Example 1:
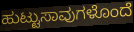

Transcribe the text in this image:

ಹುಟ್ಟುಸಾವುಗಳೊಂದೆ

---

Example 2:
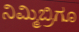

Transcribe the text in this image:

ನಿಮ್ಮಿಬ್ರಿಗೂ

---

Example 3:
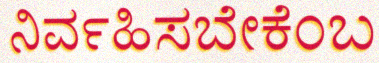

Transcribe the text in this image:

ನಿರ್ವಹಿಸಬೇಕೆಂಬ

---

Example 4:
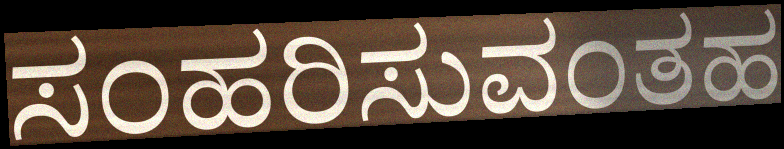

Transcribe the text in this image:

ಸಂಹರಿಸುವಂತಹ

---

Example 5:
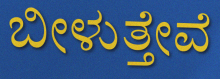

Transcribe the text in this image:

ಬೀಳುತ್ತೇವೆ